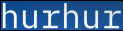
hurhur